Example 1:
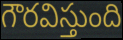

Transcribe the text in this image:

గౌరవిస్తుంది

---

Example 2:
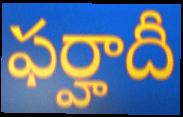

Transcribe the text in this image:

ఫర్హాదీ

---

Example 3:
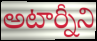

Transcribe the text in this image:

అటార్నీని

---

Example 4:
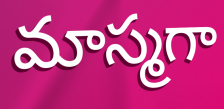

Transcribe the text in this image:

మాస్మగా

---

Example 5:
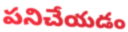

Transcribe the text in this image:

పనిచేయడం